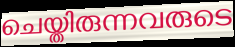
ചെയ്തിരുന്നവരുടെ